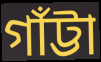
গাঁট্টা